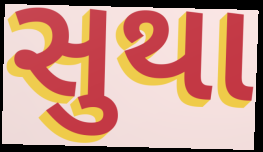
સુથા